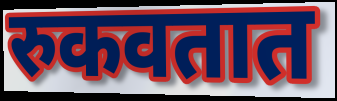
रुकवतात